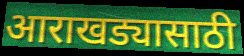
आराखड्यासाठी